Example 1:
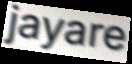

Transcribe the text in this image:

jayare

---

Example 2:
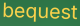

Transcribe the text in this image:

bequest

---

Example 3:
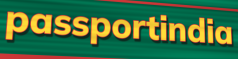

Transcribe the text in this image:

passportindia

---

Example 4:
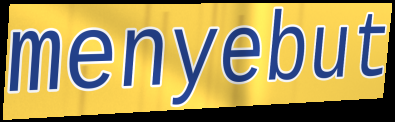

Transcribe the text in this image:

menyebut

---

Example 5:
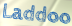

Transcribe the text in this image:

Laddoo